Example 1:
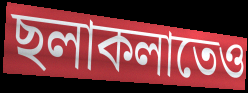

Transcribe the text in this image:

ছলাকলাতেও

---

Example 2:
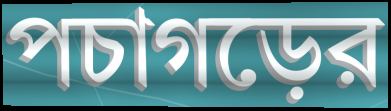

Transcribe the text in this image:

পচাগড়ের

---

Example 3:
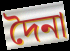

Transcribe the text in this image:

দৈনা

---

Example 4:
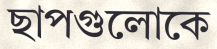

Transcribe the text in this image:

ছাপগুলোকে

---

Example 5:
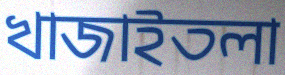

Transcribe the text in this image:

খাজাইতলা